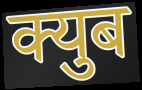
क्युब